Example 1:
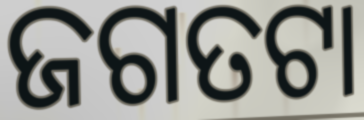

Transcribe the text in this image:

ଜଗତଟା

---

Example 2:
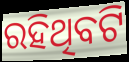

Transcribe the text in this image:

ରହିଥିବଟି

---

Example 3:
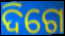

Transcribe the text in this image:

ଦିଗେ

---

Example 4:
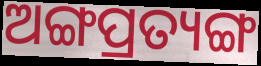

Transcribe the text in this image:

ଅଙ୍ଗପ୍ରତ୍ୟଙ୍ଗ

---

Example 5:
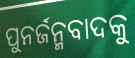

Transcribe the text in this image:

ପୁନର୍ଜନ୍ମବାଦକୁ